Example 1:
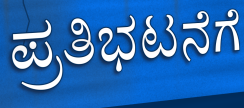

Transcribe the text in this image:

ಪ್ರತಿಭಟನೆಗೆ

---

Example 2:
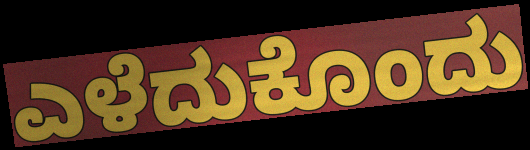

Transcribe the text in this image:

ಎಳೆದುಕೊಂದು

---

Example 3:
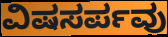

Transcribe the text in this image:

ವಿಷಸರ್ಪವು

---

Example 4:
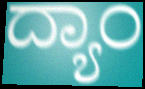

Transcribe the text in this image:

ದ್ಯಾಂ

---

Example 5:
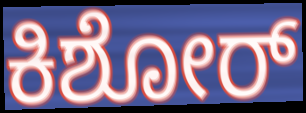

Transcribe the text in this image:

ಕಿಶೋರ್